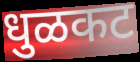
धुळकट